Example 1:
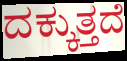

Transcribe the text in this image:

ದಕ್ಕುತ್ತದೆ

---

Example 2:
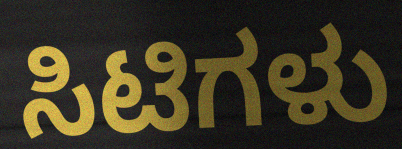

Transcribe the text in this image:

ಸಿಟಿಗಳು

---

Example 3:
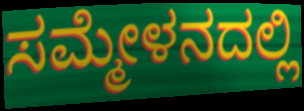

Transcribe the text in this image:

ಸಮ್ಮೇಳನದಲ್ಲಿ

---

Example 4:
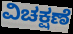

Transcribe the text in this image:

ವಿಚಕ್ಷಣೆ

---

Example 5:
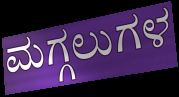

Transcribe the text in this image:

ಮಗ್ಗಲುಗಳ